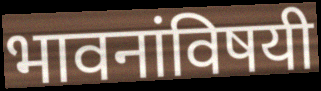
भावनांविषयी